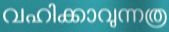
വഹിക്കാവുന്നത്ര